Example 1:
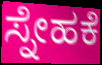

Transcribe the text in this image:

ಸ್ನೇಹಕೆ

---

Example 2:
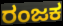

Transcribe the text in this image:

ರಂಜಕ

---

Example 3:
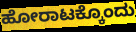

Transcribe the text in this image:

ಹೋರಾಟಕ್ಕೊಂದು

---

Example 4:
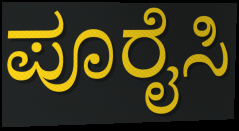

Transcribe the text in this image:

ಪೂರೈಸಿ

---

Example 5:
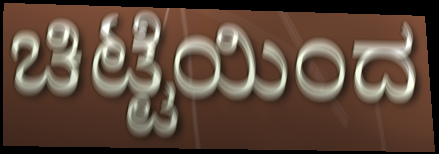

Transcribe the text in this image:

ಚಿಟ್ಟೆಯಿಂದ